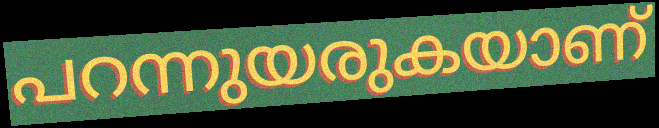
പറന്നുയരുകയാണ്